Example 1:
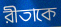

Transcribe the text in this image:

রীতাকে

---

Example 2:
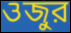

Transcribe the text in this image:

ওজুর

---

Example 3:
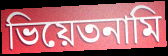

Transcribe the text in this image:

ভিয়েতনামি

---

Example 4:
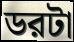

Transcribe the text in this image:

ডরটা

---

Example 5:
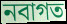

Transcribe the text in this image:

নবাগত